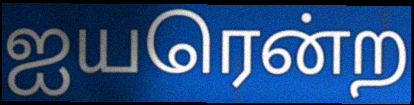
ஐயரென்ற